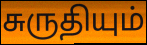
சுருதியும்